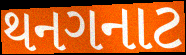
થનગનાટ